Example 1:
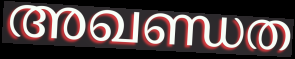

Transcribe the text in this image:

അഖണ്ഡത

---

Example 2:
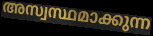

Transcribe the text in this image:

അസ്വസ്ഥമാക്കുന്ന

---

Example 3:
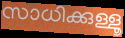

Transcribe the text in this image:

സാധിക്കുള്ളൂ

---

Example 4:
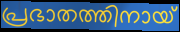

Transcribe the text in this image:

പ്രഭാതത്തിനായ്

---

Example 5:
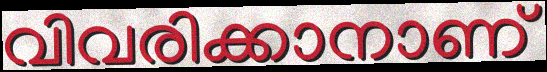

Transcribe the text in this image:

വിവരിക്കാനാണ്